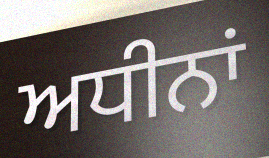
ਅਧੀਨਾਂ